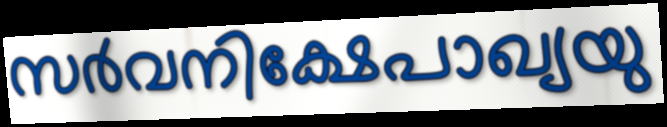
സർവനിക്ഷേപാഖ്യയു